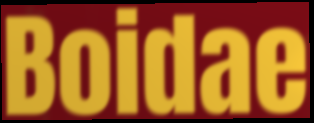
Boidae